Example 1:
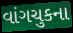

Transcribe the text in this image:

વાંગચુકના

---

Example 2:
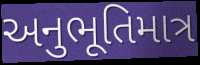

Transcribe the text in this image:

અનુભૂતિમાત્ર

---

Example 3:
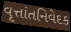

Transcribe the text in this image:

વૃત્તાંતનિવેદક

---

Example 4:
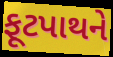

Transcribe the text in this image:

ફૂટપાથને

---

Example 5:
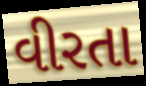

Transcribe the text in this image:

વીરતા